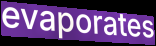
evaporates